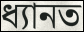
ধ্যানত